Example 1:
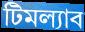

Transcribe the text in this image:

টিমল্যাব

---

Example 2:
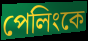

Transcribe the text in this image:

পেলিংকে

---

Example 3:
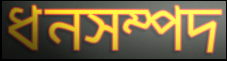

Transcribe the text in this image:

ধনসম্পদ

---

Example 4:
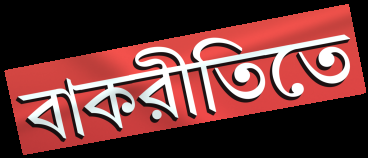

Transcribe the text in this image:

বাকরীতিতে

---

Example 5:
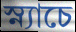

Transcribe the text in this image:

স্ন্যাচে